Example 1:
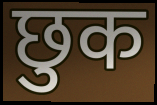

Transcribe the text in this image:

छुक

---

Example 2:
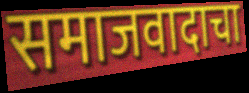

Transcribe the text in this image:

समाजवादाचा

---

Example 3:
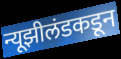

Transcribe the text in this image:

न्यूझीलंडकडून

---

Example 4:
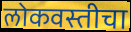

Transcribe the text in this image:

लोकवस्तीचा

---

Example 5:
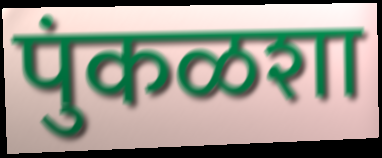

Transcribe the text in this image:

पुंकळशा